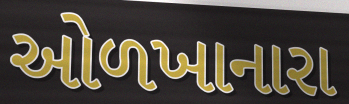
ઓળખાનારા